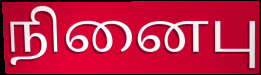
நினைபு